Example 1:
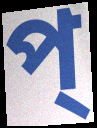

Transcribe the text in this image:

প্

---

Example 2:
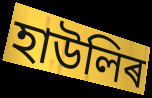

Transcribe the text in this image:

হাউলিৰ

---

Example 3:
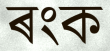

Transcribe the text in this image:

ৰংক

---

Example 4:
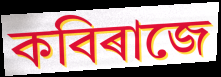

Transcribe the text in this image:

কবিৰাজে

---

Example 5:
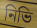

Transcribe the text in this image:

নিভি